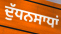
ਦੁੱਧਨਸਾਧਾਂ